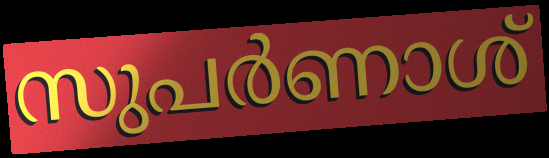
സുപർണാശ്